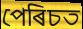
পেৰিচত